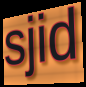
sjid